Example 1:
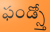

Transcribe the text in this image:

ఫండ్స్తో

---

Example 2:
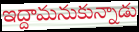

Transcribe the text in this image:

ఇద్దామనుకున్నాడు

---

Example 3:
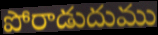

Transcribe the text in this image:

పోరాడుదుము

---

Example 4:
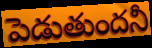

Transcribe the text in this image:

పెడుతుందనీ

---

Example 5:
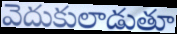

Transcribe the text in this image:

వెదుకులాడుతూ